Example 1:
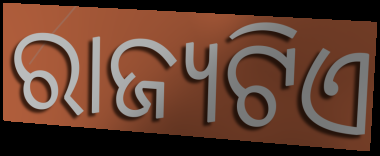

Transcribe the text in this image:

ରାଜ୍ୟଟିଏ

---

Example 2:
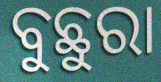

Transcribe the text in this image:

ବୁଛୁରା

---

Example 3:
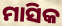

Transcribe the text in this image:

ମାସିକ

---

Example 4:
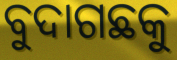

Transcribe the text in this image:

ବୁଦାଗଛକୁ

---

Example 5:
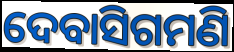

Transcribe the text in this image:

ଦେବାସିଗମଣି